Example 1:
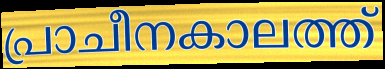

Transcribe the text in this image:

പ്രാചീനകാലത്ത്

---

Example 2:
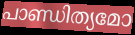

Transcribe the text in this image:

പാണ്ഡിത്യമോ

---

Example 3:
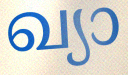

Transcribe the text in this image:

ഖ്യാ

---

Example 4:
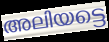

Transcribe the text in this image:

അലിയട്ടെ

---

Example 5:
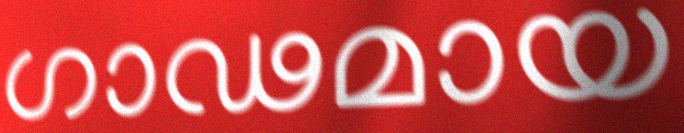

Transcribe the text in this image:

ഗാഢമായ